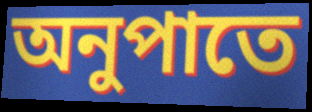
অনুপাতে